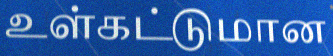
உள்கட்டுமான